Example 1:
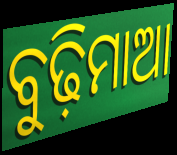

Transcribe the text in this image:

ବୁଢ଼ିମାଆ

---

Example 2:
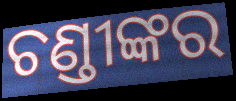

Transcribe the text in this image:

ଚଣ୍ଡୀଙ୍କର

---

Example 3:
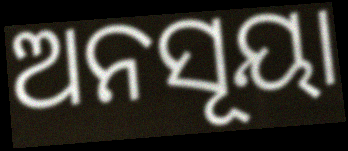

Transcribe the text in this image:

ଅନସୂୟା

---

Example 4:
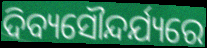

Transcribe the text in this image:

ଦିବ୍ୟସୌନ୍ଦର୍ଯ୍ୟରେ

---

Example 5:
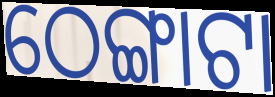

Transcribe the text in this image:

ଠେଙ୍ଗାଟା